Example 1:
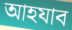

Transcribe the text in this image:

আহযাব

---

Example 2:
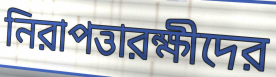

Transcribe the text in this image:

নিরাপত্তারক্ষীদের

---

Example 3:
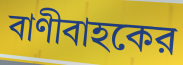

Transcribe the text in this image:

বাণীবাহকের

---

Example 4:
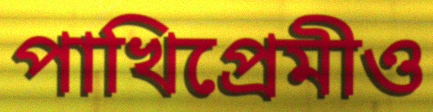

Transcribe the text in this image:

পাখিপ্রেমীও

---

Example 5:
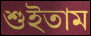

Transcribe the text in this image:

শুইতাম